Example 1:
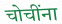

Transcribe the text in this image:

चोचींना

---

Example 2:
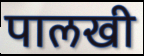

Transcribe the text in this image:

पालखी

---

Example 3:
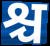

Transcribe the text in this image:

श्च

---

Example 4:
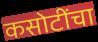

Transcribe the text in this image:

कसोटींचा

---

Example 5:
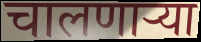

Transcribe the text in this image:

चालणाऱ्या